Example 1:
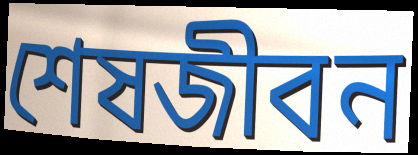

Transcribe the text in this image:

শেষজীবন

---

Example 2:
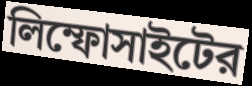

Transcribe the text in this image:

লিম্ফোসাইটের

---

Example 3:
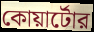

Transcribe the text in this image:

কোয়ার্টোর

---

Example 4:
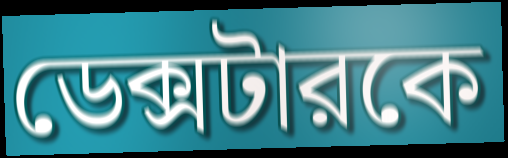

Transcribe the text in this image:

ডেক্সটারকে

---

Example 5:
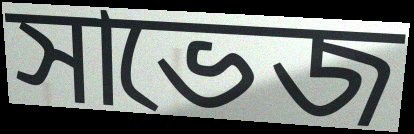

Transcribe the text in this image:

সাভেজ